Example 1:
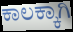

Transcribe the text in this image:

ಕಾಲಕ್ಕಾಗಿ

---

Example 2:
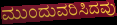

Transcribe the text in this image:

ಮುಂದುವರಿಸಿದವು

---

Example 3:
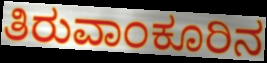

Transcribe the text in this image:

ತಿರುವಾಂಕೂರಿನ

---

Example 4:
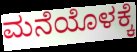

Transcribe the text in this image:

ಮನೆಯೊಳಕ್ಕೆ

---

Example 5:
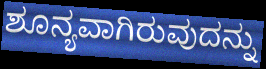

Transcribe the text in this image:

ಶೂನ್ಯವಾಗಿರುವುದನ್ನು